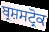
ਬ੍ਰਸ਼ਸਟ੍ਰੋਕ